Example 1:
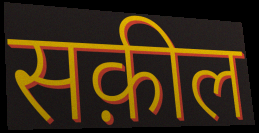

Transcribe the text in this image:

सक़ील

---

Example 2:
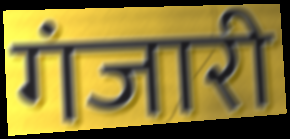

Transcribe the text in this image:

गंजारी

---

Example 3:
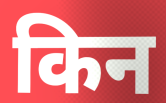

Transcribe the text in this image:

किन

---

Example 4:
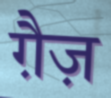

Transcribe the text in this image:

ग़ैज़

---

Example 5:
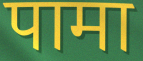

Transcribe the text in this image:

पामा